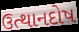
ઉત્થાનદોષ